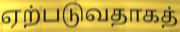
ஏற்படுவதாகத்